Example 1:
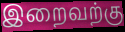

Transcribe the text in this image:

இறைவற்கு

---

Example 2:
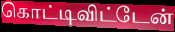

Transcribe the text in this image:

கொட்டிவிட்டேன்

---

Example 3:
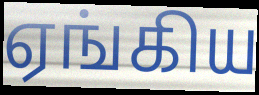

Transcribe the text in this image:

ஏங்கிய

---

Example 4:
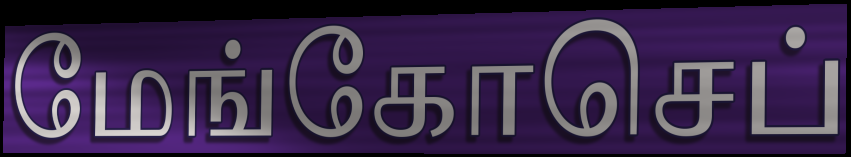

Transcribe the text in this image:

மேங்கோசெப்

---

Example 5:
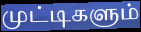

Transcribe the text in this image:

முட்டிகளும்